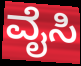
ವೈಸಿ